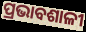
ପ୍ରଭାବଶାଳୀ